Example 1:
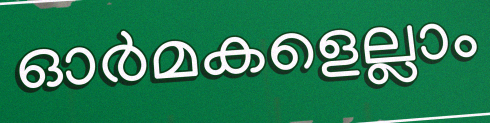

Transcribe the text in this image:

ഓർമകളെല്ലാം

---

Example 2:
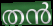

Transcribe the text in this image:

തൻ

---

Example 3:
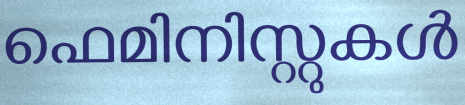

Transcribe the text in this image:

ഫെമിനിസ്റ്റുകൾ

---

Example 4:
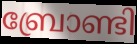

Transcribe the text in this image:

ബ്രോണ്ടി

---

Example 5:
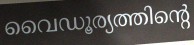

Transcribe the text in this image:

വൈഡൂര്യത്തിന്റെ